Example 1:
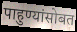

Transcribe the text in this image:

पाहुण्यांसोबत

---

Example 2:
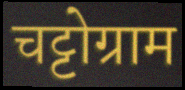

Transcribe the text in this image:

चट्टोग्राम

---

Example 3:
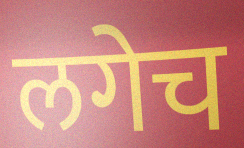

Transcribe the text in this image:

लगेच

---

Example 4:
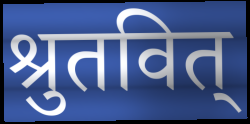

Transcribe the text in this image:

श्रुतवित्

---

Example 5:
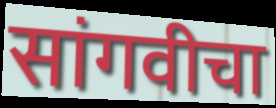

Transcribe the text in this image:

सांगवीचा